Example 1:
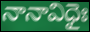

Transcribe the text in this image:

నానావిధైః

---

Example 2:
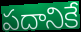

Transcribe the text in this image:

పదానికే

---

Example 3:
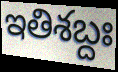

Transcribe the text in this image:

ఇతిశబ్దః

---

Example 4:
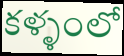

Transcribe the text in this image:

కళ్ళంలో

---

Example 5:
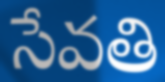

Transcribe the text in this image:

సేవతి